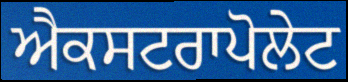
ਐਕਸਟਰਾਪੋਲੇਟ